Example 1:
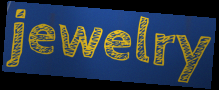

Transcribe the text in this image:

jewelry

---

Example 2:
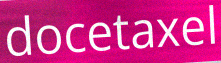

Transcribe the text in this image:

docetaxel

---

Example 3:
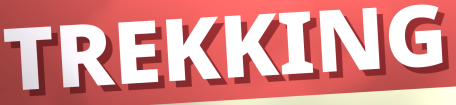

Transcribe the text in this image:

TREKKING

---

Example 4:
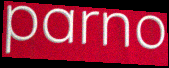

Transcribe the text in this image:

parno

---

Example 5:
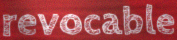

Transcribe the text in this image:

revocable